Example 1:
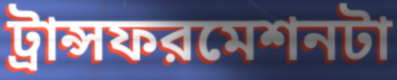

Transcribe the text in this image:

ট্রান্সফরমেশনটা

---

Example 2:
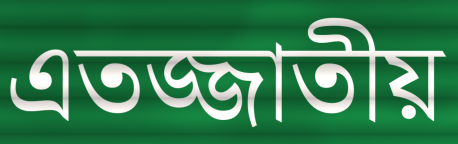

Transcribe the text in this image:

এতজ্জাতীয়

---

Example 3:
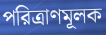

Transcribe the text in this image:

পরিত্রাণমূলক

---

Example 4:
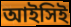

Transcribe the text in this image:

আইসিই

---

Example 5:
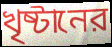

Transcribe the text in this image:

খৃষ্টানের